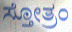
ಸ್ತೋತ್ರಂ